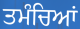
ਤਮੰਚਿਆਂ